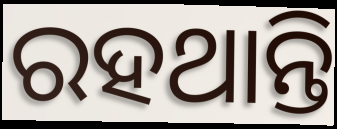
ରହଥାନ୍ତି